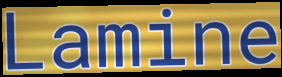
Lamine